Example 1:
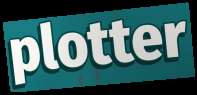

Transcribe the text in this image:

plotter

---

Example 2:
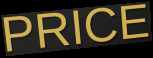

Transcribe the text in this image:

PRICE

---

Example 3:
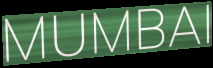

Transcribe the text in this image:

MUMBAI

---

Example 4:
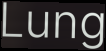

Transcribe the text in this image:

Lung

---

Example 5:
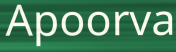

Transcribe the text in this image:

Apoorva